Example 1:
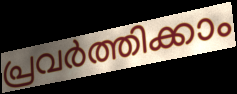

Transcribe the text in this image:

പ്രവർത്തിക്കാം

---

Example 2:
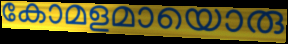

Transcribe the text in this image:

കോമളമായൊരു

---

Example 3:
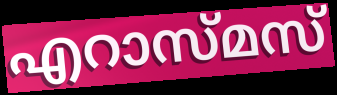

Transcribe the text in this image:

എറാസ്മസ്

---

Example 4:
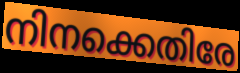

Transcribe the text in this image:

നിനക്കെതിരേ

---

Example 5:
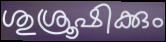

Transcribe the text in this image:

ശുശ്രൂഷിക്കും